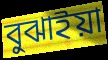
বুঝাইয়া